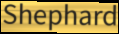
Shephard